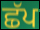
ਛੱਪ